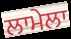
ਲਾਮੇਲਾ